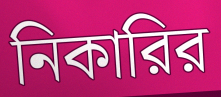
নিকারির